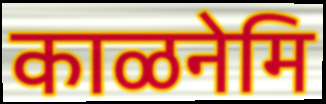
काळनेमि